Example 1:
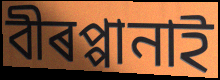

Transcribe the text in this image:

বীৰপ্পানাই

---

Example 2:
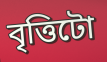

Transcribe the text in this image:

বৃত্তিটো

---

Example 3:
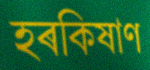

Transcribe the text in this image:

হৰকিষাণ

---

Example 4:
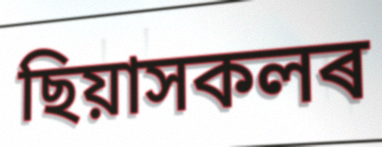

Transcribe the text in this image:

ছিয়াসকলৰ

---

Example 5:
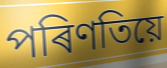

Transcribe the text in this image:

পৰিণতিয়ে